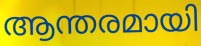
ആന്തരമായി